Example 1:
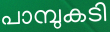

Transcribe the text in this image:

പാമ്പുകടി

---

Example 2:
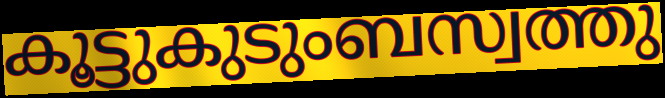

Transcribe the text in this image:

കൂട്ടുകുടുംബസ്വത്തു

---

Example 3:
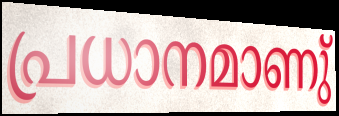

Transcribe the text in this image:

പ്രധാനമാണു്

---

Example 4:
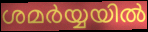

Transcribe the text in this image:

ശമർയ്യയിൽ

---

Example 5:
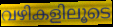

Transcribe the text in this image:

വഴികളിലൂടെ